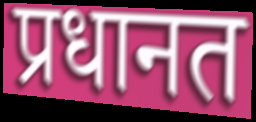
प्रधानत